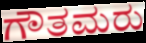
ಗೌತಮರು